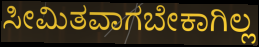
ಸೀಮಿತವಾಗಬೇಕಾಗಿಲ್ಲ